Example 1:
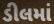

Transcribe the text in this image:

ડીલમાં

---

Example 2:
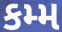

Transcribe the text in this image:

કમ્મ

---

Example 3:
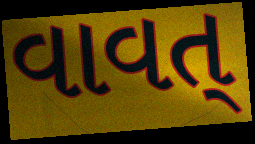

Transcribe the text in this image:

વાવત્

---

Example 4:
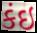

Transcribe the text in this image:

કંઇ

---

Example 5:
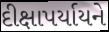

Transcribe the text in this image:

દીક્ષાપર્યાયને